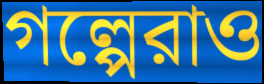
গল্পেরাও